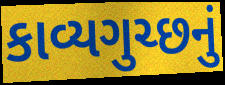
કાવ્યગુચ્છનું